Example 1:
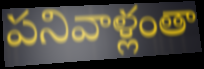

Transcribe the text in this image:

పనివాళ్లంతా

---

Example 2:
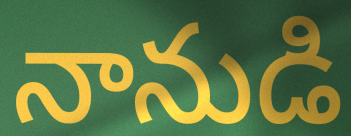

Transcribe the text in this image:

నానుడి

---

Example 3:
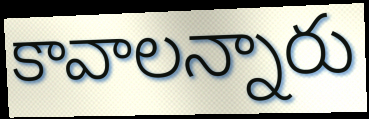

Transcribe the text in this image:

కావాలన్నారు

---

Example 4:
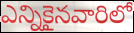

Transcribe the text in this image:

ఎన్నికైనవారిలో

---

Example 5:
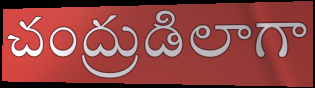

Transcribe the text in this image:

చంద్రుడిలాగా